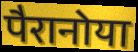
पैरानोया